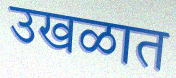
उखळात